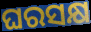
ଘରସକ୍ଷ